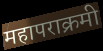
महापराक्रमी